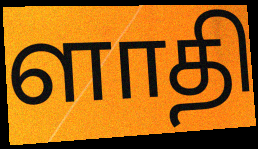
ளாதி